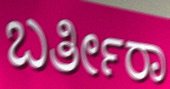
ಬರ್ತೀರಾ